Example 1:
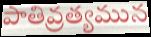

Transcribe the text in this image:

పాతివ్రత్యమున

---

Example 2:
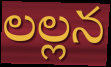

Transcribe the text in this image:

లల్లన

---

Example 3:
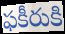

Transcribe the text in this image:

ఫకీరుకి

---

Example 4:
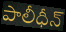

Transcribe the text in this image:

పాలీధీన్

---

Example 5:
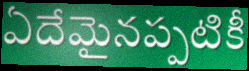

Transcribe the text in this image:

ఏదేమైనప్పటికీ